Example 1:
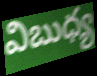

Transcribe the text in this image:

విబుధ్య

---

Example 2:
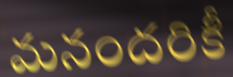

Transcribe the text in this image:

మనందరికీ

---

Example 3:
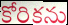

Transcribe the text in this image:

కోరికను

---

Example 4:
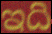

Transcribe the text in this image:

ఇది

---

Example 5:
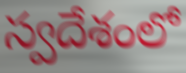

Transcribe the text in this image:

స్వదేశంలో